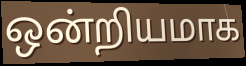
ஒன்றியமாக